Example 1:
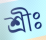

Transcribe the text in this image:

শ্রীঃ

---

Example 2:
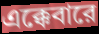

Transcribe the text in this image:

এক্কেবারে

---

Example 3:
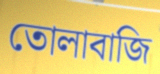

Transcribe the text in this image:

তোলাবাজি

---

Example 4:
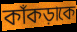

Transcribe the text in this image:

কাঁকড়াকে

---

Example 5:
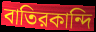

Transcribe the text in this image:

বাতিরকান্দি